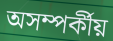
অসম্পর্কীয়